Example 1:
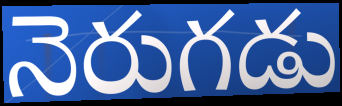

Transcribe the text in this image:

నెరుగడు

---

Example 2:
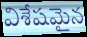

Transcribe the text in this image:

విశేషమైన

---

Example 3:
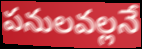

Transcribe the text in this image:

పనులవల్లనే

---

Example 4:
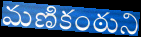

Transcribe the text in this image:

మణికంఠుని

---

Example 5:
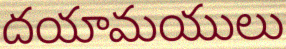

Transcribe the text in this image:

దయామయులు